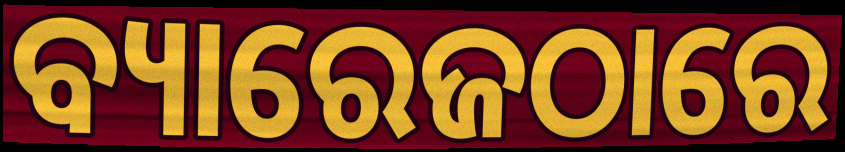
ବ୍ୟାରେଜଠାରେ